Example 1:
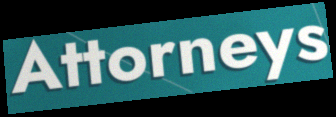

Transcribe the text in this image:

Attorneys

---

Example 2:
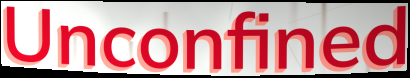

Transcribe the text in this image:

Unconfined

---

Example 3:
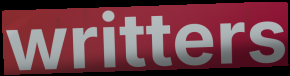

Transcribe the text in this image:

writters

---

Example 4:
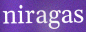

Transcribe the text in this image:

niragas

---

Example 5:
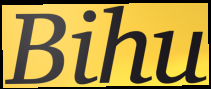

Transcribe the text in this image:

Bihu